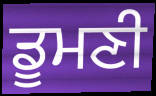
ਡੂਮਣੀ